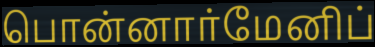
பொன்னார்மேனிப்